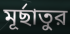
মূর্ছাতুর